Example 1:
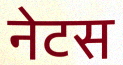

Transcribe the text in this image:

नेटस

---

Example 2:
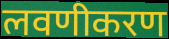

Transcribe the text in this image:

लवणीकरण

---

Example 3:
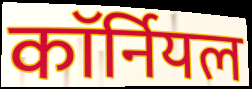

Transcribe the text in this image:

कॉर्नियल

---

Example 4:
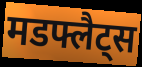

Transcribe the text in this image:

मडफ्लैट्स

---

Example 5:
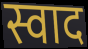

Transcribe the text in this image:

स्वाद